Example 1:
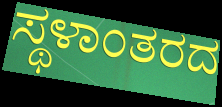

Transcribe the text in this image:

ಸ್ಥಳಾಂತರದ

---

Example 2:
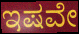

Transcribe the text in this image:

ಇಷವೇ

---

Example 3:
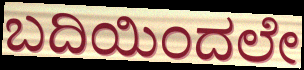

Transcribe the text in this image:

ಬದಿಯಿಂದಲೇ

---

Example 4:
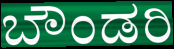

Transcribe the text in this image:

ಬೌಂಡರಿ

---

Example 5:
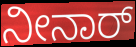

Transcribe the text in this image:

ನೀನಾರ್